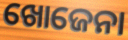
ଖୋଜେନା